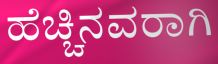
ಹೆಚ್ಚಿನವರಾಗಿ